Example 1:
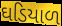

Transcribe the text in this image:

ઘડિયાળ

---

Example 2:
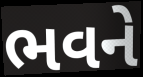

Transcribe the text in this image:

ભવને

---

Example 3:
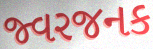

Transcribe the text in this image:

જ્વરજનક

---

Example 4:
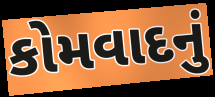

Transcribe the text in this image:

કોમવાદનું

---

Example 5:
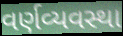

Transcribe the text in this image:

વર્ણવ્યવસ્થા